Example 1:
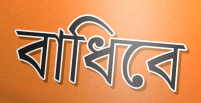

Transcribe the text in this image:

বাধিবে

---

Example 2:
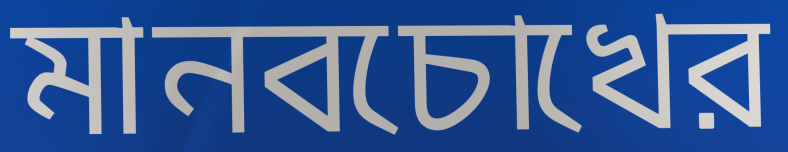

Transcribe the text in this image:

মানবচোখের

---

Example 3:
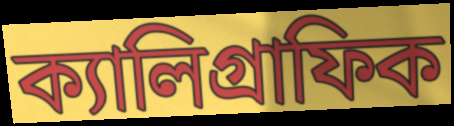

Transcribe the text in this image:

ক্যালিগ্রাফিক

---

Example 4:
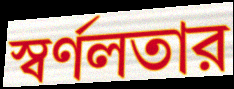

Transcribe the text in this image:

স্বর্ণলতার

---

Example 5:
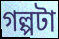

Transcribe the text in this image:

গল্পটা